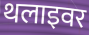
थलाइवर